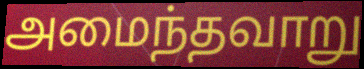
அமைந்தவாறு